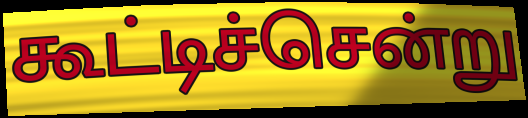
கூட்டிச்சென்று